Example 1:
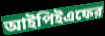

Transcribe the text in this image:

আইপিইএফের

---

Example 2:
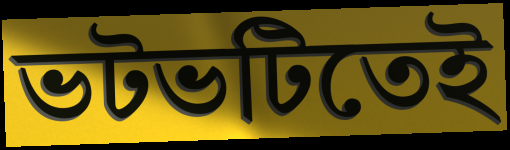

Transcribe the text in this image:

ভটভটিতেই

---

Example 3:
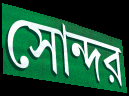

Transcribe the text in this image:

সোন্দর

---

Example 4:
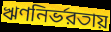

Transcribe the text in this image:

ঋণনির্ভরতায়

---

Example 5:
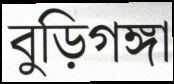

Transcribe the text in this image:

বুড়িগঙ্গা